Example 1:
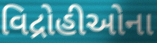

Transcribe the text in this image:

વિદ્રોહીઓના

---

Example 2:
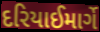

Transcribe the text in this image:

દરિયાઈમાર્ગે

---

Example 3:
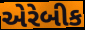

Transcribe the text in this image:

એરેબીક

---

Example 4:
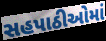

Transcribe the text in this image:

સહપાઠીઓમાં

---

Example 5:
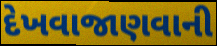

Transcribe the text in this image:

દેખવાજાણવાની